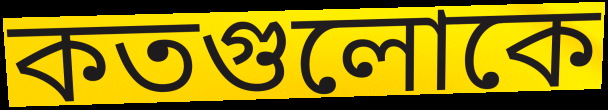
কতগুলোকে